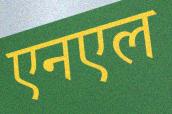
एनएल